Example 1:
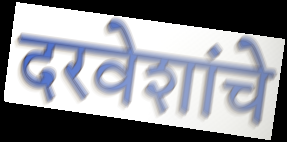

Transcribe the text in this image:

दरवेशांचे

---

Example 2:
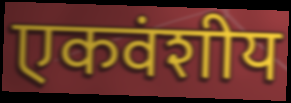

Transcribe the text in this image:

एकवंशीय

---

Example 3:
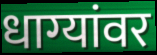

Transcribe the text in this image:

धाग्यांवर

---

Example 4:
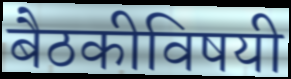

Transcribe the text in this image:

बैठकीविषयी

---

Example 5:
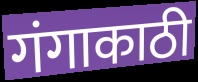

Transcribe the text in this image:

गंगाकाठी